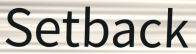
Setback